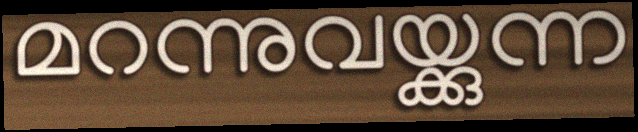
മറന്നുവയ്ക്കുന്ന